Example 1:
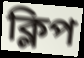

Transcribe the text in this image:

ক্লিপ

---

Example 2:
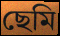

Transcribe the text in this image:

ছেমি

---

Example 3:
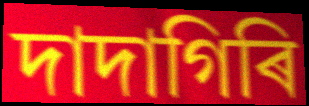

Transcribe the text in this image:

দাদাগিৰি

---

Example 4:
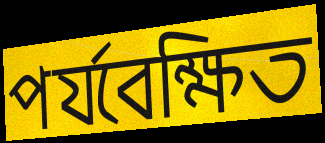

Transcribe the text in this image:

পৰ্যবেক্ষিত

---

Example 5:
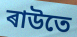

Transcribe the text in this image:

ৰাউতে